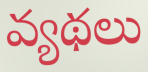
వ్యథలు